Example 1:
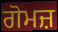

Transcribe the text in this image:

ਗੋਮਜ਼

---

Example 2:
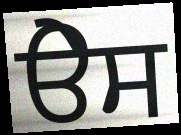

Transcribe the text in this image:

ੳੇਸ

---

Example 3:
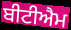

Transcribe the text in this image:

ਬੀਟੀਐਮ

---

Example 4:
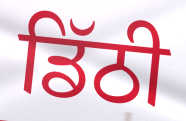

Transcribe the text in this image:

ਡਿੱਠੀ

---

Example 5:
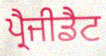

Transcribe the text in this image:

ਪ੍ਰੈਜੀਡੈਟ